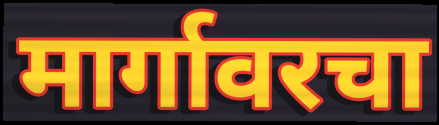
मार्गावरचा